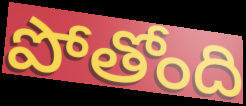
పోతోంది